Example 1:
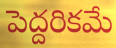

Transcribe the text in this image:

పెద్దరికమే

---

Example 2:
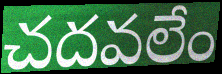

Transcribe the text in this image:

చదవలేం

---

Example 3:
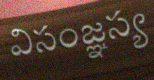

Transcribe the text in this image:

విసంజ్ఞస్య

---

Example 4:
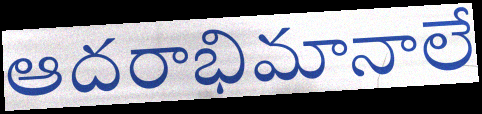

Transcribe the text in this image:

ఆదరాభిమానాలే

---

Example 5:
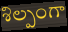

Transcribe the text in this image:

శిల్పంగా